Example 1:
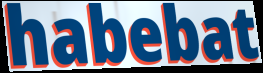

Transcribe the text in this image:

habebat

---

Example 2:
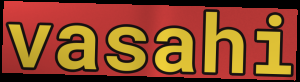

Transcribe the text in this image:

vasahi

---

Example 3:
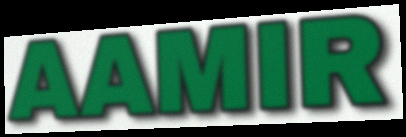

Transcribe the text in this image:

AAMIR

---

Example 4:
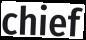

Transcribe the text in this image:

chief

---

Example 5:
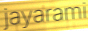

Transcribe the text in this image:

jayarami